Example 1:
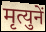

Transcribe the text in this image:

मृत्युनें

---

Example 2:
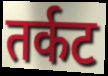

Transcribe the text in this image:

तर्कट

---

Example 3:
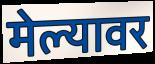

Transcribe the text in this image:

मेल्यावर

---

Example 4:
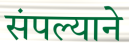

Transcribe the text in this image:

संपल्याने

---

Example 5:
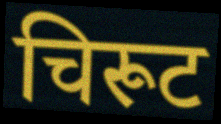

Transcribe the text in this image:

चिरूट